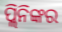
ପ୍ଲିନିଙ୍କର